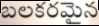
బలకరమైన